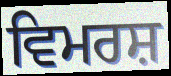
ਵਿਮਰਸ਼